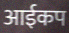
आईकप